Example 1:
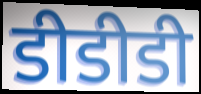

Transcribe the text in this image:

डीडीडी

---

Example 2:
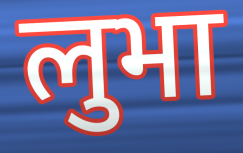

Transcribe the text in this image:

लुभा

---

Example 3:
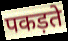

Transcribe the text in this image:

पकड़ते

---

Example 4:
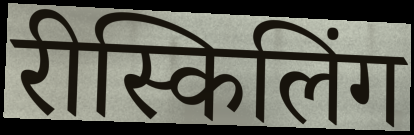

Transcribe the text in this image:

रीस्किलिंग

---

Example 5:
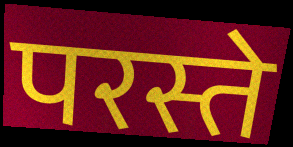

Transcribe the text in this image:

परस्ते